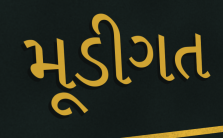
મૂડીગત